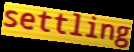
settling